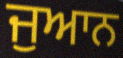
ਜੁਆਨ